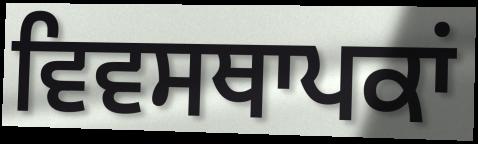
ਵਿਵਸਥਾਪਕਾਂ